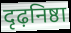
दृढ़निष्ठा